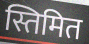
स्तिमित